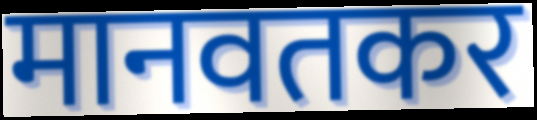
मानवतकर